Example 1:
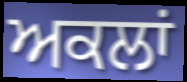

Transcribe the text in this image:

ਅਕਲਾਂ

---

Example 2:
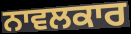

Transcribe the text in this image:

ਨਾਵਲਕਾਰ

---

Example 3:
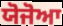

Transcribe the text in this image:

ਯੋਜੋਆ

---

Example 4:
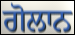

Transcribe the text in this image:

ਗੋਲਾਨ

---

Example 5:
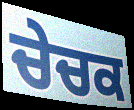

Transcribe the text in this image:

ਚੇਚਕ